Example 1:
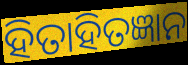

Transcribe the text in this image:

ହିତାହିତଜ୍ଞାନ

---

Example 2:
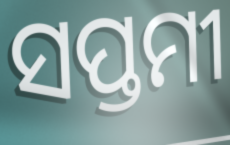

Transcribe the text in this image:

ସପ୍ତମୀ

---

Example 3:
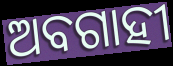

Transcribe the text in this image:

ଅବଗାହୀ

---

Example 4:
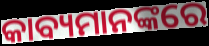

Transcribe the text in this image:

କାବ୍ୟମାନଙ୍କରେ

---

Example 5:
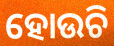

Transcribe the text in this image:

ହୋଉଚି